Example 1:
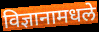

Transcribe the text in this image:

विज्ञानामधले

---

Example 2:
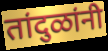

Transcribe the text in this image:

तांदुळांनी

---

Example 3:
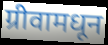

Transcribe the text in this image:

ग्रीवामधून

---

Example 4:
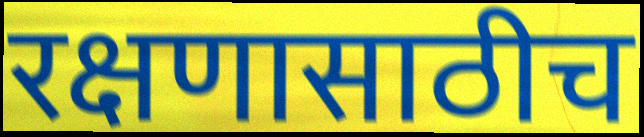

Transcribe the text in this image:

रक्षणासाठीच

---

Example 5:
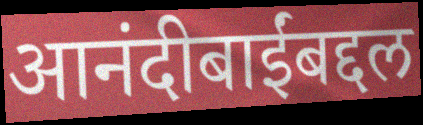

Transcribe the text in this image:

आनंदीबाईंबद्दल